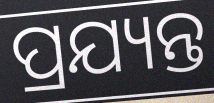
ପ୍ରଯ୍ୟନ୍ତ